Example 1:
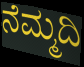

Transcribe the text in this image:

ನೆಮ್ಮದಿ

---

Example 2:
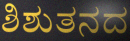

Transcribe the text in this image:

ಶಿಶುತನದ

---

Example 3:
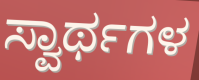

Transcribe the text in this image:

ಸ್ವಾರ್ಥಗಳ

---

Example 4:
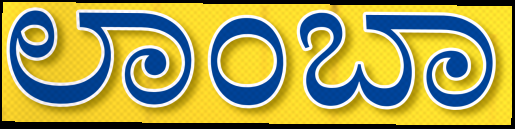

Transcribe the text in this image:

ಲಾಂಬಾ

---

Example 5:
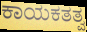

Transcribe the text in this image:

ಕಾಯಕತತ್ವ